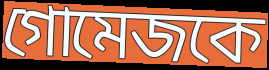
গোমেজকে